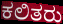
ಕಲಿತರು